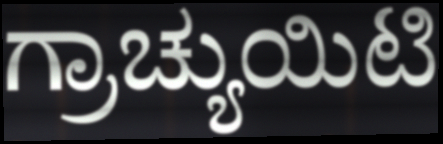
ಗ್ರಾಚ್ಯುಯಿಟಿ